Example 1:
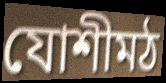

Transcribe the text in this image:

যোশীমঠ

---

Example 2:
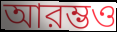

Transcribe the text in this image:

আরম্ভও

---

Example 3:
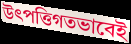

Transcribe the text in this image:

উৎপত্তিগতভাবেই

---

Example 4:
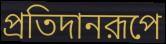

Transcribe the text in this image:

প্রতিদানরূপে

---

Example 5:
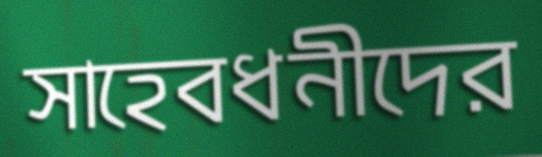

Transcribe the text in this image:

সাহেবধনীদের